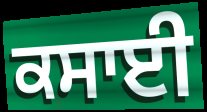
ਕਸਾਈ